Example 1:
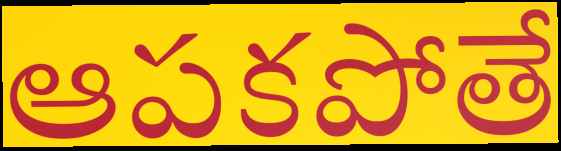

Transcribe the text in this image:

ఆపకపోతే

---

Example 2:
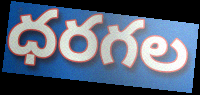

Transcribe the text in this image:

ధరగల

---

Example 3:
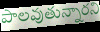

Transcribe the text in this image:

పాలవుతున్నారని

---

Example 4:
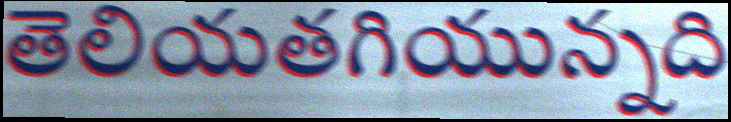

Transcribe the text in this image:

తెలియతగియున్నది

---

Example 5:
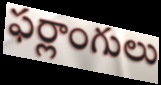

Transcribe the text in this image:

ఫర్లాంగులు